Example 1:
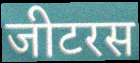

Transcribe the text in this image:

जीटरस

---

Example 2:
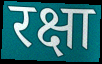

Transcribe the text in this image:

रक्षा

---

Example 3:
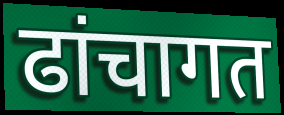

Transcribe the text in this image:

ढांचागत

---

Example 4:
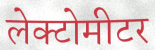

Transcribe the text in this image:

लेक्टोमीटर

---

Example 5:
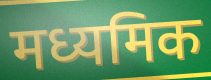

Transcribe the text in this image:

मध्यमिक